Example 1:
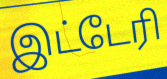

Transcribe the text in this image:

இட்டேரி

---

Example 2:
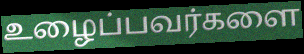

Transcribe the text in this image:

உழைப்பவர்களை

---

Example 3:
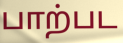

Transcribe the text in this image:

பாற்பட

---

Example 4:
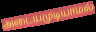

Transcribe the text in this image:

அடையமுடியாமல்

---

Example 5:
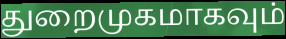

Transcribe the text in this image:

துறைமுகமாகவும்